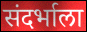
संदर्भाला